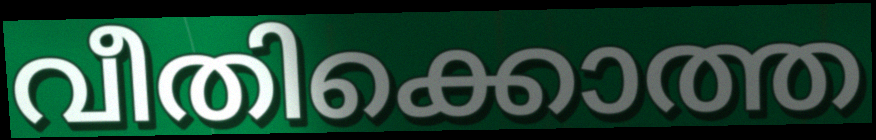
വീതിക്കൊത്ത